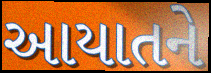
આયાતને